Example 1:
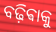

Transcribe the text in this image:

ବଢ଼ିଵାକୁ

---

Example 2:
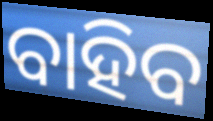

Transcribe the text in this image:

ବାହିବ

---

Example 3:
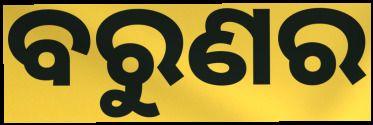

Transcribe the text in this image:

ବରୁଣର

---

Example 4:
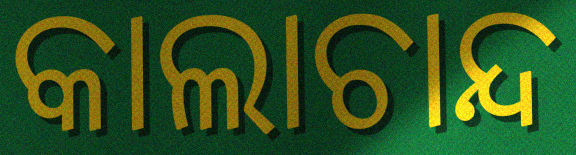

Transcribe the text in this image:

କାଲାଚାନ୍ଦ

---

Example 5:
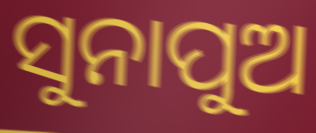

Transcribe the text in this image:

ସୁନାପୁଅ